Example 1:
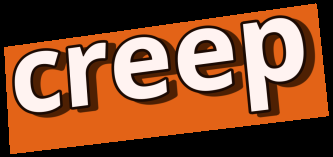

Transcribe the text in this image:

creep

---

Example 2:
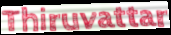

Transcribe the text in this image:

Thiruvattar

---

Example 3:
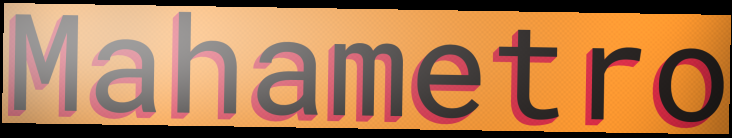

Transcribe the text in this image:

Mahametro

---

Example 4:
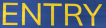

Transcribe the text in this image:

ENTRY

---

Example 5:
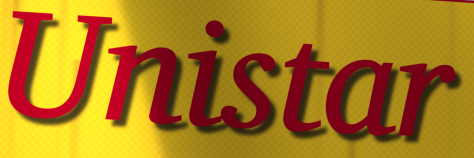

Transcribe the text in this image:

Unistar